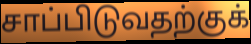
சாப்பிடுவதற்குக்